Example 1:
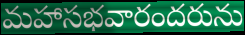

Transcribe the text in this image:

మహాసభవారందరును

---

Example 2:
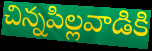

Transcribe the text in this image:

చిన్నపిల్లవాడికి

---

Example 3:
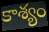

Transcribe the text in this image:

కాశ్యం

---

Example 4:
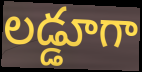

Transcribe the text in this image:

లడ్డూగా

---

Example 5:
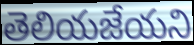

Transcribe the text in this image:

తెలియజేయని